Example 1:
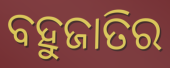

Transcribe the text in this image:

ବହୁଜାତିର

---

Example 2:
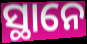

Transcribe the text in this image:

ସ୍ଥାନେ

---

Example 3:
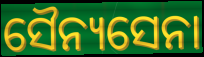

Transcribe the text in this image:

ସୈନ୍ୟସେନା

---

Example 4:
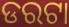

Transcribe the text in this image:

ଡରଟା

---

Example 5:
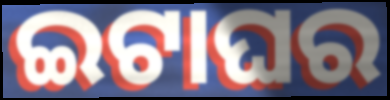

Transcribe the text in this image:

ଇଟାଘର